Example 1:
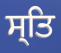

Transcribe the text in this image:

ਸ੍ਤਿ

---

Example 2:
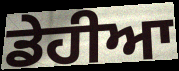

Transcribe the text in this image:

ਡੇਹੀਆ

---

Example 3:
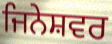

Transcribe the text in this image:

ਜਿਨੇਸ਼ਵਰ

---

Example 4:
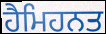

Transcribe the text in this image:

ਹੈਮਿਹਨਤ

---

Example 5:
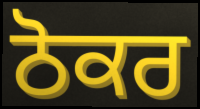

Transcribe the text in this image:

ਠੋਕਰ